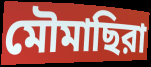
মৌমাছিরা